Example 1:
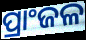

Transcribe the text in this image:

ପ୍ରାଂଜଳ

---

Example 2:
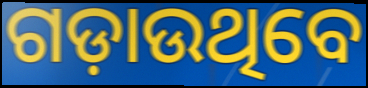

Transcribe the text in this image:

ଗଡ଼ାଉଥିବେ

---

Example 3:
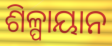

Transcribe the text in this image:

ଶିଳ୍ପାୟାନ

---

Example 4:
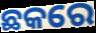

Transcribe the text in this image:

ଛକରେ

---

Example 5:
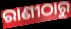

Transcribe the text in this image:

ରାଣୀଠାରୁ